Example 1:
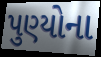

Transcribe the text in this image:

પુણ્યોના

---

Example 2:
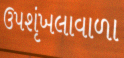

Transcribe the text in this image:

ઉપશૃંખલાવાળા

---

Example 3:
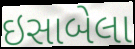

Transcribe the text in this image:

ઇસાબેલા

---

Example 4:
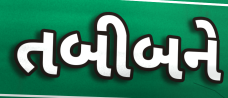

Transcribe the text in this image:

તબીબને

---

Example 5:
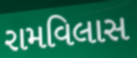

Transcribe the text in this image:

રામવિલાસ